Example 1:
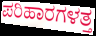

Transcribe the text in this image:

ಪರಿಹಾರಗಳತ್ತ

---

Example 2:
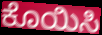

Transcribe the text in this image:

ಕೊಯಿಸಿ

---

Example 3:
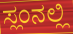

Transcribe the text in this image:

ಸ್ಲಂನಲ್ಲಿ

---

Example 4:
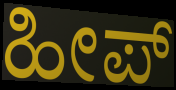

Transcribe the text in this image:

ಹೀಪ್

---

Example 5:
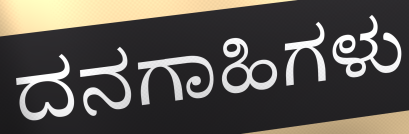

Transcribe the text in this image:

ದನಗಾಹಿಗಳು